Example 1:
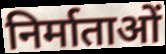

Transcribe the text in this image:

निर्माताओं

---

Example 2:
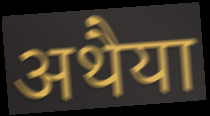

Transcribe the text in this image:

अथैया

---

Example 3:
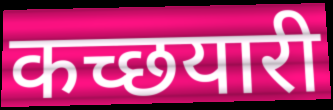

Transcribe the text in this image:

कच्छयारी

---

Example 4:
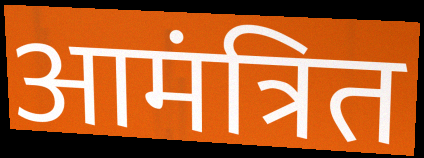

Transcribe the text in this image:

आमंत्रित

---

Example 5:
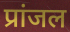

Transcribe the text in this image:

प्रांजल